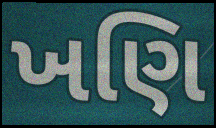
ખણિ